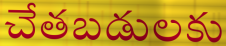
చేతబడులకు